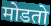
मोडतो